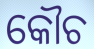
କୌଚ